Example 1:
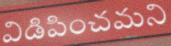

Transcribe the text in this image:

విడిపించమని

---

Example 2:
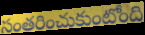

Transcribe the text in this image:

సంతరించుకుంటోంది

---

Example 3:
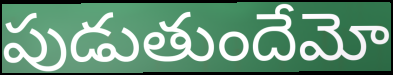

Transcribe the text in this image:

పుడుతుందేమో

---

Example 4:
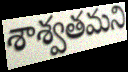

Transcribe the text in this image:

శాశ్వతమని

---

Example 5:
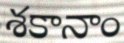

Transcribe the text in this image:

శకానాం